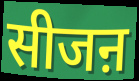
सीजऩ